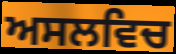
ਅਸਲਵਿਚ